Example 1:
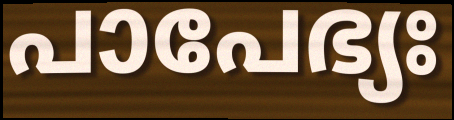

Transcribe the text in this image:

പാപേഭ്യഃ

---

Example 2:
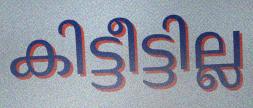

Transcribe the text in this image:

കിട്ടീട്ടില്ല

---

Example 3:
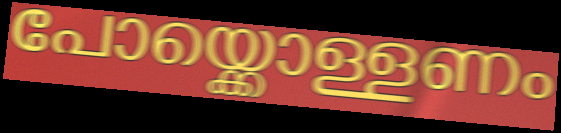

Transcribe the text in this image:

പോയ്ക്കൊള്ളണം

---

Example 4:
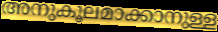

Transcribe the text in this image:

അനുകൂലമാക്കാനുള്ള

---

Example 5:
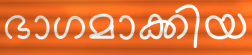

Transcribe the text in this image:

ഭാഗമാക്കിയ